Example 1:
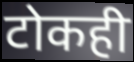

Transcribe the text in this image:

टोकही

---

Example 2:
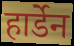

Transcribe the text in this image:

हार्डेन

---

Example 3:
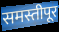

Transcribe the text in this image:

समस्तीपूर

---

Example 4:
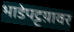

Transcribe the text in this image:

भाडेपट्टय़ावर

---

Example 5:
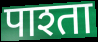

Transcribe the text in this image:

पाश्ता